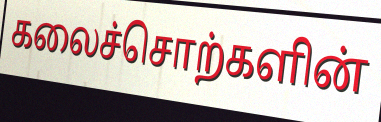
கலைச்சொற்களின்